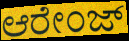
ಆರೇಂಜ್